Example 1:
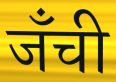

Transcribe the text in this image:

जँची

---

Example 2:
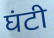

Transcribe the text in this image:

घंटी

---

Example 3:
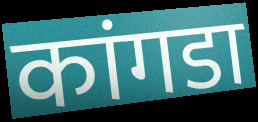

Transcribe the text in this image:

कांगडा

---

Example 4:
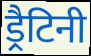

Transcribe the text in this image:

ड्रैटिनी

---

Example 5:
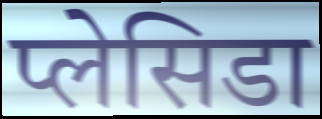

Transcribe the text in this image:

प्लेसिडा